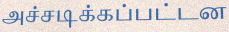
அச்சடிக்கப்பட்டன